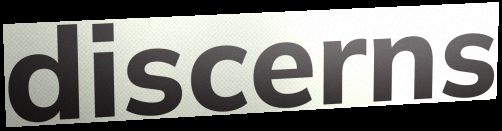
discerns